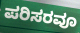
ಪರಿಸರವೂ